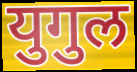
युगुल